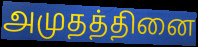
அமுதத்தினை